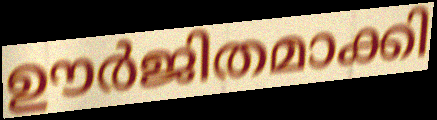
ഊർജിതമാക്കി